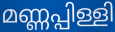
മണ്ണപ്പിള്ളി